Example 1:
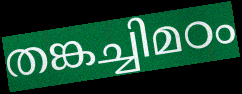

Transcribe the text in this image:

തങ്കച്ചിമഠം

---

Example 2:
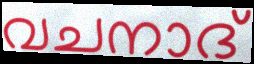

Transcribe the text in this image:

വചനാദ്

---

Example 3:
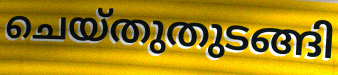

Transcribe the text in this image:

ചെയ്തുതുടങ്ങി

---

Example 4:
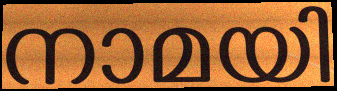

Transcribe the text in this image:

നാമയി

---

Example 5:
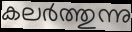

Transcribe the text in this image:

കലർത്തുന്നു